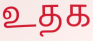
உதக